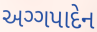
અગ્ગપાદેન